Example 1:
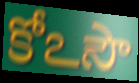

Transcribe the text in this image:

కోఽసౌ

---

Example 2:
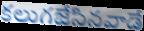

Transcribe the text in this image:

కలుగజేసినవాడే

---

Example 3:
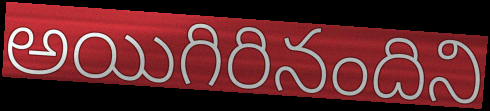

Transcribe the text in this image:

అయిగిరినందిని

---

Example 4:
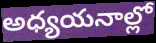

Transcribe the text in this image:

అధ్యయనాల్లో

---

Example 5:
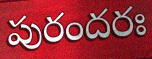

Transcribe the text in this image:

పురందరః